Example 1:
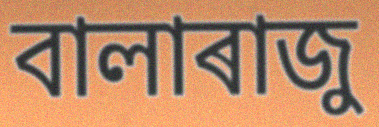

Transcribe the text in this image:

বালাৰাজু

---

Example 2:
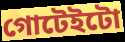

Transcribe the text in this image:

গোটেইটো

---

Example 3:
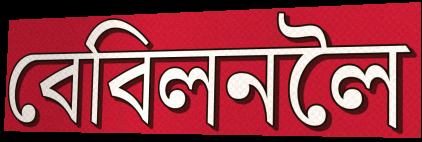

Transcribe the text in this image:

বেবিলনলৈ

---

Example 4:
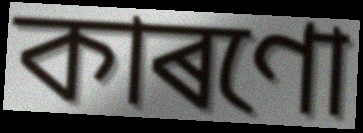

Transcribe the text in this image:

কাৰণো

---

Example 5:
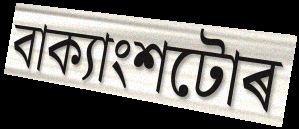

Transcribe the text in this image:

বাক্যাংশটোৰ